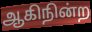
ஆகிநின்ற